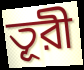
তূরী